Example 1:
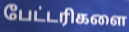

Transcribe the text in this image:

பேட்டரிகளை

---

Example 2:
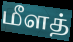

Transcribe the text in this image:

மீளத்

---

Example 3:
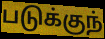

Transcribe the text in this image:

படுக்குந்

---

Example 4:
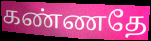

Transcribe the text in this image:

கண்ணதே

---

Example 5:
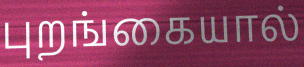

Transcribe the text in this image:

புறங்கையால்